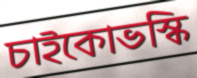
চাইকোভস্কি